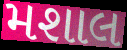
મશાલ